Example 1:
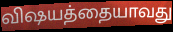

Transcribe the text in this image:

விஷயத்தையாவது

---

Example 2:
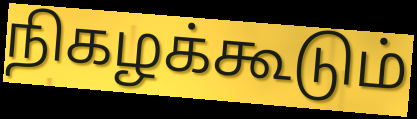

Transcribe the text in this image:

நிகழக்கூடும்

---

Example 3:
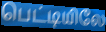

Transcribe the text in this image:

பெட்டியிலே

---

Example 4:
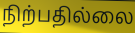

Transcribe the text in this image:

நிற்பதில்லை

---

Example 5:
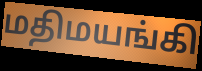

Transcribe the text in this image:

மதிமயங்கி